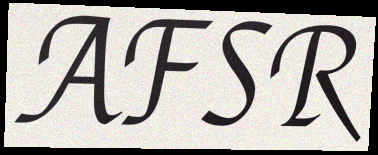
AFSR